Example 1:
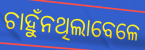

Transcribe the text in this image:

ଚାହୁଁନଥିଲାବେଳେ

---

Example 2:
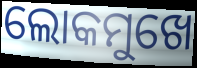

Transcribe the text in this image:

ଲୋକମୁଖେ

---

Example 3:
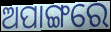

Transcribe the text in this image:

ଅପାଙ୍ଗରେ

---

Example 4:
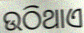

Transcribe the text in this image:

ଉଠିଥାଏ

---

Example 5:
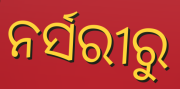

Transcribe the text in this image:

ନର୍ସରୀରୁ